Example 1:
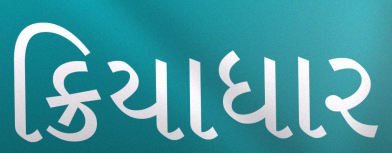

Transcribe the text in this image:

ક્રિયાધાર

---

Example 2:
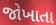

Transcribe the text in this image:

જોખાતા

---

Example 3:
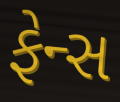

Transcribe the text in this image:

ફેન્સ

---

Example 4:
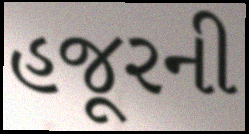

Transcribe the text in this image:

હજૂરની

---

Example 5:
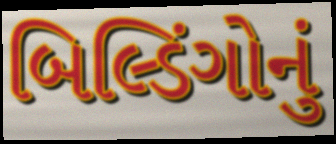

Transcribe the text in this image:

બિલ્ડિંગોનું